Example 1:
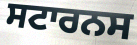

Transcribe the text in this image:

ਸਟਾਰਨਸ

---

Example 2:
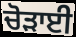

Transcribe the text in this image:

ਚੋੜਾਈ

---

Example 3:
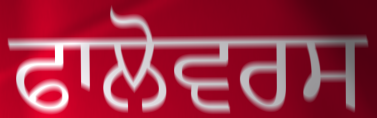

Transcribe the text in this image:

ਫਾਲੋਵਰਸ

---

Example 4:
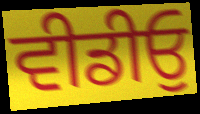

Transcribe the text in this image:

ਵੀਡੀਓੁ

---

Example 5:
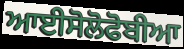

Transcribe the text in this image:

ਆਈਸੋਲੋਫੋਬੀਆ